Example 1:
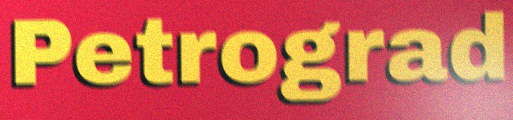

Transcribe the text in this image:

Petrograd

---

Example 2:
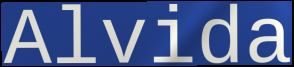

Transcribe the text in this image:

Alvida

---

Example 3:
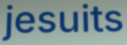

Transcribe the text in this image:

jesuits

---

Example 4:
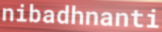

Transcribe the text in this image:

nibadhnanti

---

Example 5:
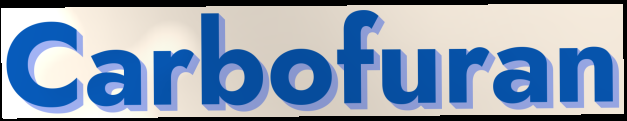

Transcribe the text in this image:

Carbofuran